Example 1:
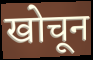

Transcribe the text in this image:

खोचून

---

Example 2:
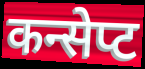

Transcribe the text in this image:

कन्सेप्ट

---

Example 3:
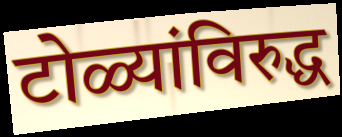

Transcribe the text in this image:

टोळ्यांविरुद्ध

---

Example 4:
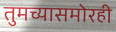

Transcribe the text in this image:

तुमच्यासमोरही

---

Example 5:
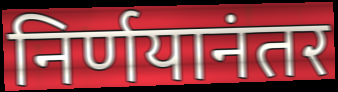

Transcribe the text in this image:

निर्णयानंतर